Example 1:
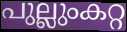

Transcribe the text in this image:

പുല്ലുംകറ്റ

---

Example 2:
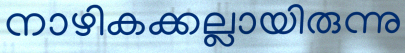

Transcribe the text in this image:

നാഴികക്കല്ലായിരുന്നു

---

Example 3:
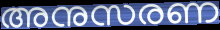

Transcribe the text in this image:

അനുസരണ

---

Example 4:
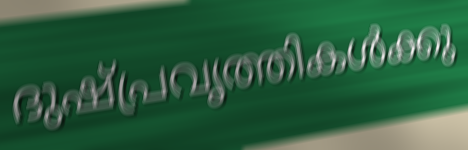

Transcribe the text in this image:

ദുഷ്പ്രവൃത്തികൾക്കു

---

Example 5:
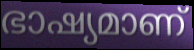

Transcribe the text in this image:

ഭാഷ്യമാണ്